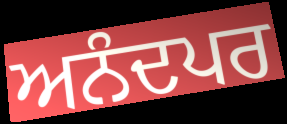
ਅਨੰਦਪਰ